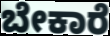
ಬೇಕಾರೆ